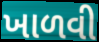
ખાળવી